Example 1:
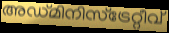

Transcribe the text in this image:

അഡ്മിനിസ്ട്രേറ്റീവ്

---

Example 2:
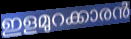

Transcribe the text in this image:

ഇളമുറക്കാരൻ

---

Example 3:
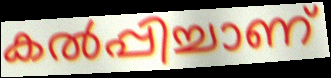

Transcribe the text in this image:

കൽപ്പിച്ചാണ്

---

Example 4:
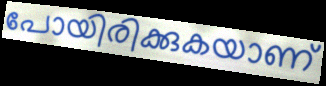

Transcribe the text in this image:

പോയിരിക്കുകയാണ്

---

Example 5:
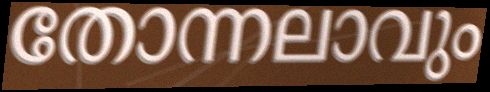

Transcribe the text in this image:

തോന്നലാവും